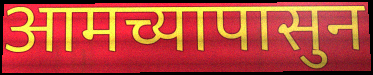
आमच्यापासुन